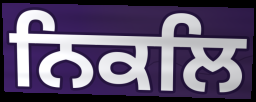
ਨਿਕਲਿ